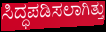
ಸಿದ್ಧಪಡಿಸಲಾಗಿತ್ತು